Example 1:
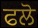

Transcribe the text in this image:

ਫਲੋ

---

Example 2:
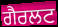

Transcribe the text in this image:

ਗੈਰਲਟ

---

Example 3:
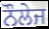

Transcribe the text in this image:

ਨੌਲੇਜ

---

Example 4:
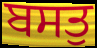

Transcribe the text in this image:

ਬਸਤੁ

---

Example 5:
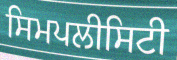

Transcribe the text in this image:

ਸਿਮਪਲੀਸਿਟੀ